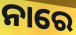
ନାରେ